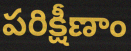
పరిక్షీణాం